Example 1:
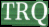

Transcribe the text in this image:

TRQ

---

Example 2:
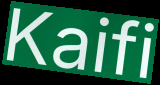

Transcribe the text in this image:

Kaifi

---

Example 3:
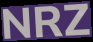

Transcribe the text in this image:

NRZ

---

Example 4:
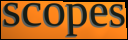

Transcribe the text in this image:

scopes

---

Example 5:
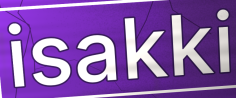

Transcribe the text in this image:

isakki